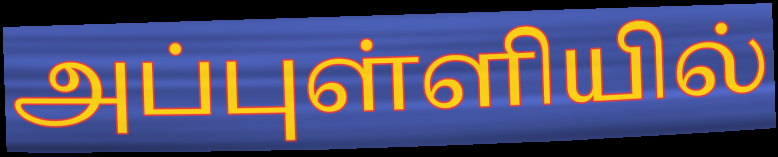
அப்புள்ளியில்